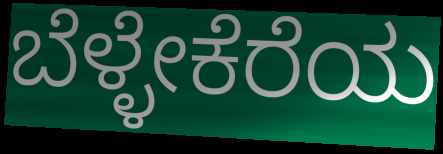
ಬೆಳ್ಳೇಕೆರೆಯ